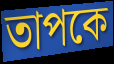
তাপকে